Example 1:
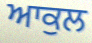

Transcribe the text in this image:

ਆਕੁਲ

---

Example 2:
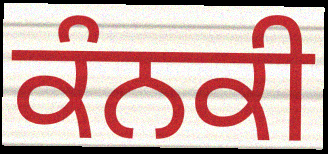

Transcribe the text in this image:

ਕੰਨਕੀ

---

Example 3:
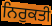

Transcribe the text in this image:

ਨਿਰੁਕਤੀ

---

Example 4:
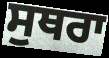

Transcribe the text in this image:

ਸੁਥਰਾ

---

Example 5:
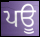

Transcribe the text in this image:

ਪਊ